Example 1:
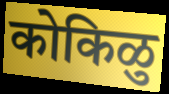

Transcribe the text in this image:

कोकिळु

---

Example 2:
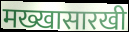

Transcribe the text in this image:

मख्खासारखी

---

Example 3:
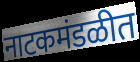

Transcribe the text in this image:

नाटकमंडळीत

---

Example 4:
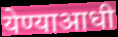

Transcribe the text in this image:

येण्याआधी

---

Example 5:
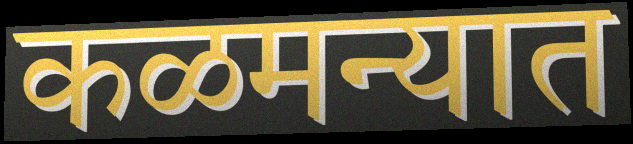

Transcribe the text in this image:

कळमन्यात